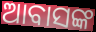
ଆବାସଙ୍କ